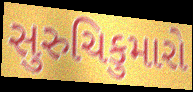
સુરુચિકુમારો